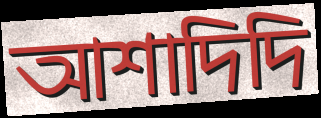
আশাদিদি